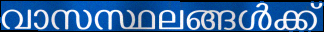
വാസസ്ഥലങ്ങൾക്ക്